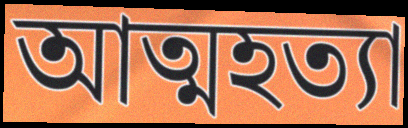
আত্মহত্যা